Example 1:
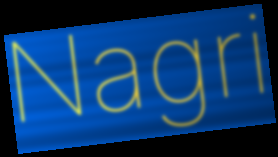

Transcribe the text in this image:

Nagri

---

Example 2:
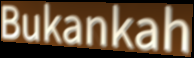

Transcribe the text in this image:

Bukankah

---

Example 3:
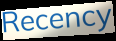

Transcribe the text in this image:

Recency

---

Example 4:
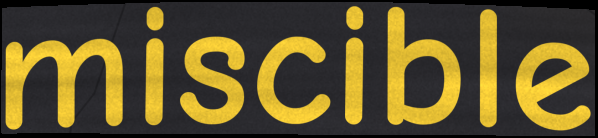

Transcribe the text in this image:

miscible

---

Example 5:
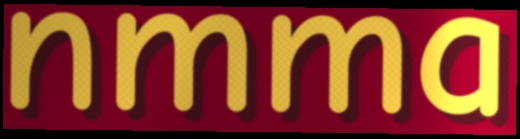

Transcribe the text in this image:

nmma